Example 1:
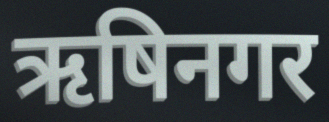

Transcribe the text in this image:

ऋषिनगर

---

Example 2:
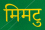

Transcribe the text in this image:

मिमटु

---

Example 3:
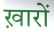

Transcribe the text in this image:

ख़ारों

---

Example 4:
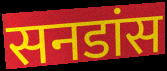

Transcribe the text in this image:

सनडांस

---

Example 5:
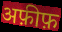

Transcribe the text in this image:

अफ़ीफ़